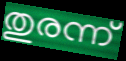
തുരന്ന്